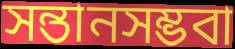
সন্তানসম্ভবা